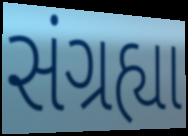
સંગ્રહ્યા